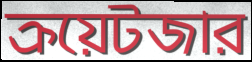
ক্রয়েটজার